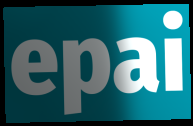
epai